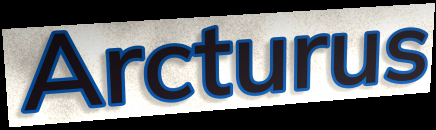
Arcturus